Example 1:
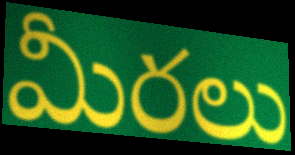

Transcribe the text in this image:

మీరలు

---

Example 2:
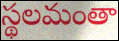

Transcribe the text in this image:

స్థలమంతా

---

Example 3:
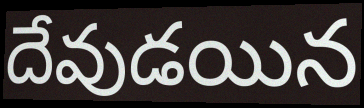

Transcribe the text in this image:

దేవుడయిన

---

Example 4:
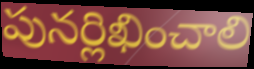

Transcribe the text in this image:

పునర్లిఖించాలి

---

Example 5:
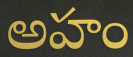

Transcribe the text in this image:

అహం